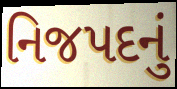
નિજપદનું